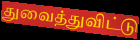
துவைத்துவிட்டு